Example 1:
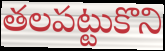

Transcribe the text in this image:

తలపట్టుకొని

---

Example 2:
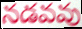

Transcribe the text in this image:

నడవవు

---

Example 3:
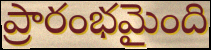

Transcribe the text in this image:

ప్రారంభమైంది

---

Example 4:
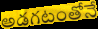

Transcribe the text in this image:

అడగటంతోనే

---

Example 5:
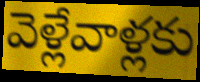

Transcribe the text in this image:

వెళ్లేవాళ్లకు